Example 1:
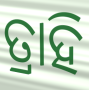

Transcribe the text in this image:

ତ୍ରାହି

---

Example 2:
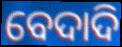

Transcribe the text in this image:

ବେଦାଦି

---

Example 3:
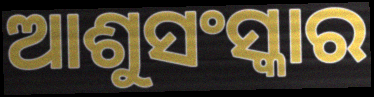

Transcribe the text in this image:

ଆଶୁସଂସ୍କାର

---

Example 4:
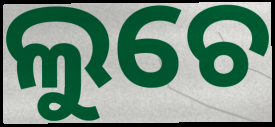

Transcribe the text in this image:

ଲୁଚେ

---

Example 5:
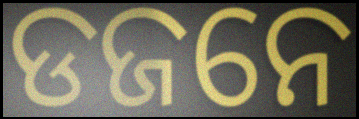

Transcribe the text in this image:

ଡଜନେ